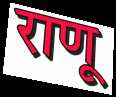
राणू